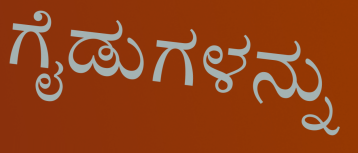
ಗೈಡುಗಳನ್ನು